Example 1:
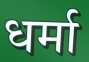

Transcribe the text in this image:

धर्मा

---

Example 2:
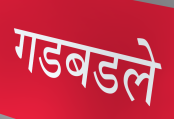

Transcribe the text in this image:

गडबडले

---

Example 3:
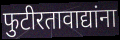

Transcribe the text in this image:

फुटीरतावाद्यांना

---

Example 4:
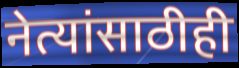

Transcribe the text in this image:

नेत्यांसाठीही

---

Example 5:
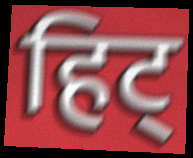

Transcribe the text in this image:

हिट्